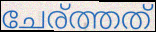
ചേര്ത്തത്